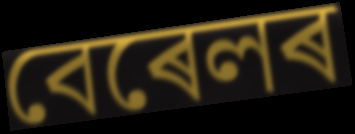
বেৰেলৰ